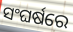
ସଂଘର୍ଷରେ